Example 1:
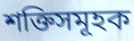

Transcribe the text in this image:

শক্তিসমূহক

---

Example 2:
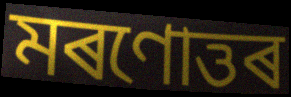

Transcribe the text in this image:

মৰণোত্তৰ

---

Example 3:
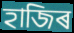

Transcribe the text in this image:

হাজিৰ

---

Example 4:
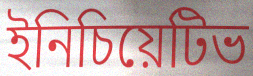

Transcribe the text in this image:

ইনিচিয়েটিভ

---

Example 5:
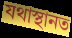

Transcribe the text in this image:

যথাস্থানত